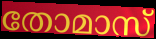
തോമാസ്